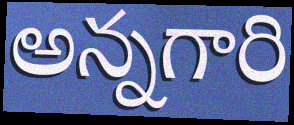
అన్నగారి